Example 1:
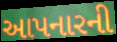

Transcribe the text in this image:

આપનારની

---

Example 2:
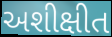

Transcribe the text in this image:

અશીક્ષીત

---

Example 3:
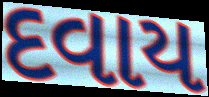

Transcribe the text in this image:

દવાય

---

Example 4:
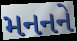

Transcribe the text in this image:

મનનને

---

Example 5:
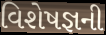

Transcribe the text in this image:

વિશેષજ્ઞની